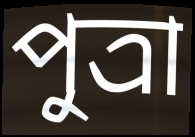
পুত্রা